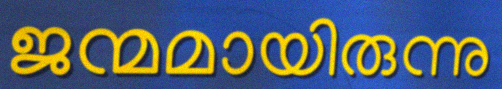
ജന്മമായിരുന്നു